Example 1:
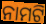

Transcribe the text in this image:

ନାମଟି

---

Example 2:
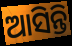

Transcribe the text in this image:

ଆସିନ୍ତି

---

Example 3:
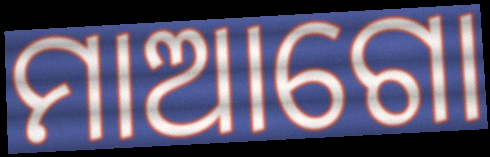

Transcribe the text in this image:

ମାଆଗୋ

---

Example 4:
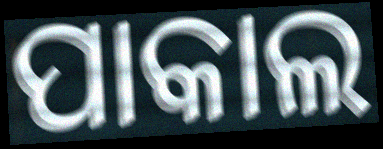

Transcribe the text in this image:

ପାକାଲ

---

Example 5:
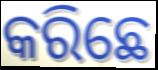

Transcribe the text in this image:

କରିଛେ